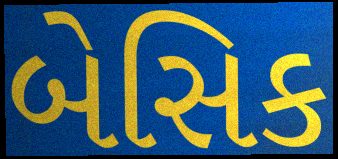
બેસિક